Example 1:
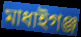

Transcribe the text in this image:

মাধাইগঞ্জ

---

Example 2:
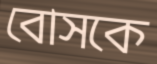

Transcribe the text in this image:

বোসকে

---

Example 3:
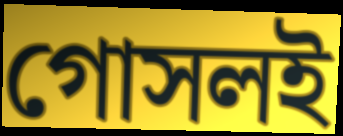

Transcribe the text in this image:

গোসলই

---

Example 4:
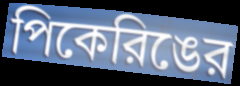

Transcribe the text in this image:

পিকেরিঙের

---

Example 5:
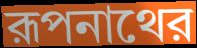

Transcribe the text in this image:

রূপনাথের